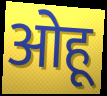
ओहू